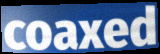
coaxed